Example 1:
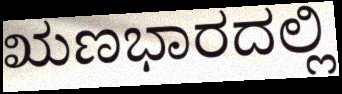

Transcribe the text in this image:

ಋಣಭಾರದಲ್ಲಿ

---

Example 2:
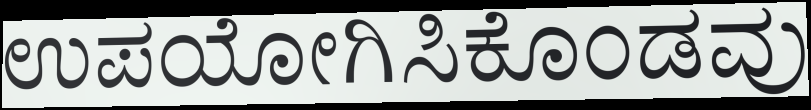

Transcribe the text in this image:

ಉಪಯೋಗಿಸಿಕೊಂಡವು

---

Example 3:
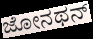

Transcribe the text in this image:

ಜೋನಥನ್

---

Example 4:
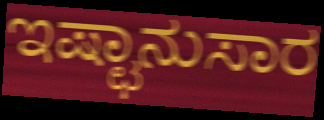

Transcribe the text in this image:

ಇಷ್ಟಾನುಸಾರ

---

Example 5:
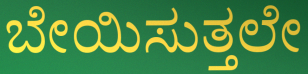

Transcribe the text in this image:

ಬೇಯಿಸುತ್ತಲೇ